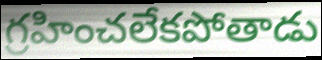
గ్రహించలేకపోతాడు